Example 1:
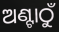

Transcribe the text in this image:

ଅଣ୍ଟାଠୁଁ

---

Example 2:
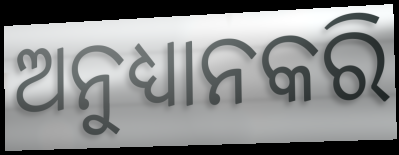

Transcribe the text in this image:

ଅନୁଧ୍ୟାନକରି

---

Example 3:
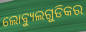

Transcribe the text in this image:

ଲୋବ୍ୟୁଲଗୁଡିକର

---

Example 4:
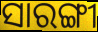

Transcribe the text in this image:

ସାରଙ୍ଗୀ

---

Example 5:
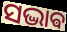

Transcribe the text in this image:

ସଦ୍ଭାଵ